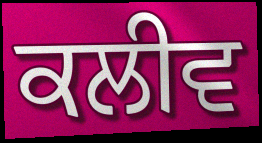
ਕਲੀਵ